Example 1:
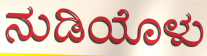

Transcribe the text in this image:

ನುಡಿಯೊಳು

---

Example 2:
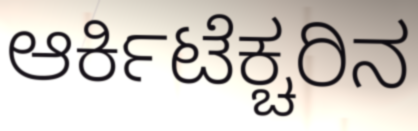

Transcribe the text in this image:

ಆರ್ಕಿಟೆಕ್ಚರಿನ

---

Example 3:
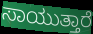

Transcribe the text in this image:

ಸಾಯುತ್ತಾರೆ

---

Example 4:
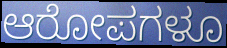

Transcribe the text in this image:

ಆರೋಪಗಳೂ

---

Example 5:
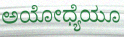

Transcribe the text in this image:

ಅಯೋಧ್ಯೆಯೂ